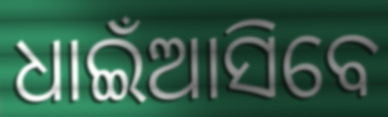
ଧାଇଁଆସିବେ